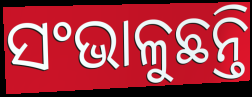
ସଂଭାଳୁଛନ୍ତି